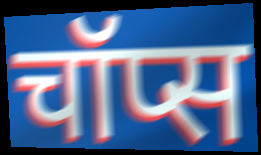
चॉप्स